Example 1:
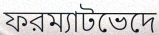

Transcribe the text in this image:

ফরম্যাটভেদে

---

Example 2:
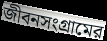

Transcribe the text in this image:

জীবনসংগ্রামের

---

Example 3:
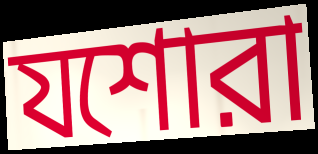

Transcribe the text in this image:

যশোরা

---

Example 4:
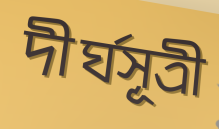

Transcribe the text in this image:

দীর্ঘসূত্রী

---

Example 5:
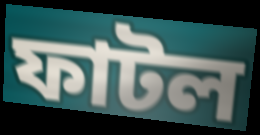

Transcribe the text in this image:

ফাটল